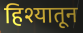
हिश्यातून